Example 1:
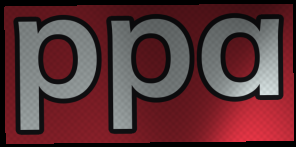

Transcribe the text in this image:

ppa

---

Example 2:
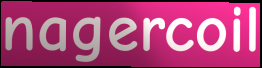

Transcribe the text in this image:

nagercoil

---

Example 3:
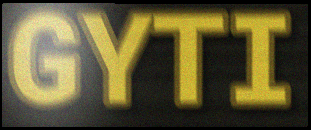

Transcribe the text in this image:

GYTI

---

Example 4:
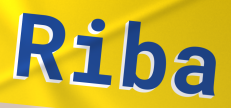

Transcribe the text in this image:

Riba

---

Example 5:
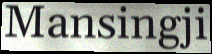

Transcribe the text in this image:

Mansingji